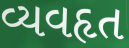
વ્યવહૃત